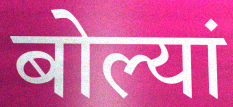
बोल्यां